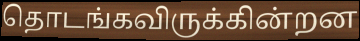
தொடங்கவிருக்கின்றன